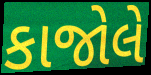
કાજોલે